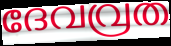
ദേവവ്രത